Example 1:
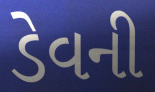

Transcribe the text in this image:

ડેવની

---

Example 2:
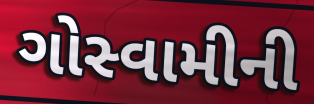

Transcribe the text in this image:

ગોસ્વામીની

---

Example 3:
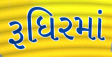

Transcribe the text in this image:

રૂધિરમાં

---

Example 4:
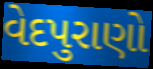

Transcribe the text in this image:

વેદપુરાણો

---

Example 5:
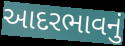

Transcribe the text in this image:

આદરભાવનું